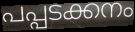
പപ്പടക്കനം